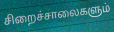
சிறைச்சாலைகளும்